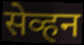
सेव्हन